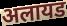
अलायड